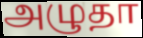
அழுதா